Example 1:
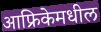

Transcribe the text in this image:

आफ्रिकेमधील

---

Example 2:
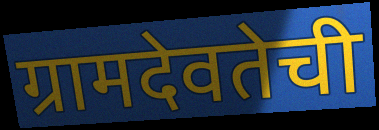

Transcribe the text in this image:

ग्रामदेवतेची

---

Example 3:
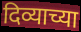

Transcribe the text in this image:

दिव्याच्या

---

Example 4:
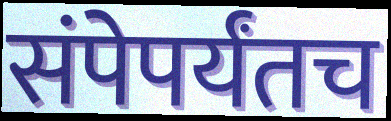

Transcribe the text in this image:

संपेपर्यंतच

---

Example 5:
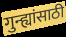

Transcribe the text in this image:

गुन्ह्यांसाठी